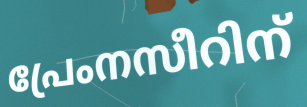
പ്രേംനസീറിന്